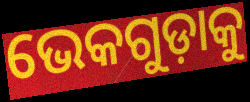
ଭେକଗୁଡ଼ାକୁ